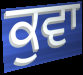
ਕੁਵਾ